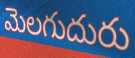
మెలగుదురు